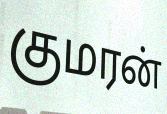
குமரன்